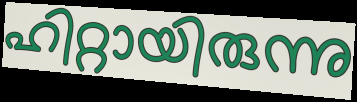
ഹിറ്റായിരുന്നു